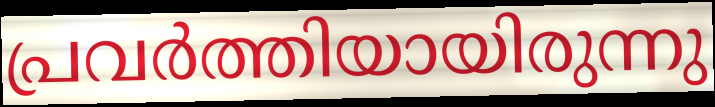
പ്രവർത്തിയായിരുന്നു